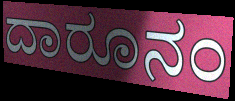
ದಾರೂನಂ